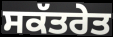
ਸਕੱਤਰੇਤ